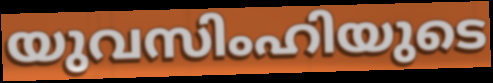
യുവസിംഹിയുടെ